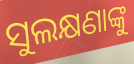
ସୁଲକ୍ଷଣାଙ୍କୁ